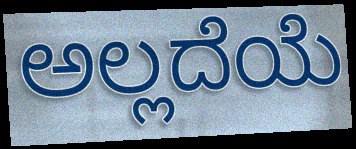
ಅಲ್ಲದೆಯೆ